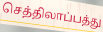
செத்திலாப்பத்து